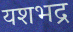
यशभद्र